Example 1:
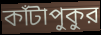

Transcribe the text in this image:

কাঁটাপুকুর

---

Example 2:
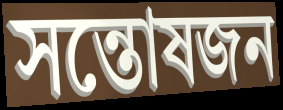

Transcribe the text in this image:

সন্তোষজন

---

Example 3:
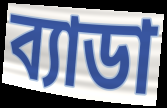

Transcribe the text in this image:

ব্যাডা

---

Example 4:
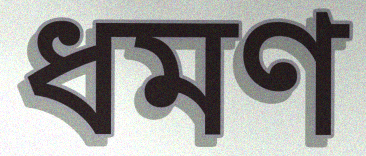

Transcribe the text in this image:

ধমণ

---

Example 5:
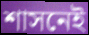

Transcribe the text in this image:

শাসনেই